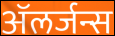
ॲलर्जन्स